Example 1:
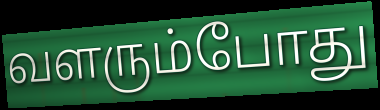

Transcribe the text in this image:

வளரும்போது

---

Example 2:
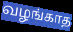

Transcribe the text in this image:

வழங்காத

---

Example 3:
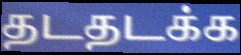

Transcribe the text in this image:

தடதடக்க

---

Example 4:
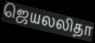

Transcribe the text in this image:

ஜெயலலிதா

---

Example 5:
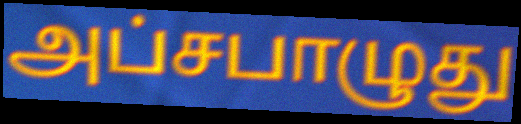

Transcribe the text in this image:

அப்சபாழுது